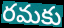
రమకు